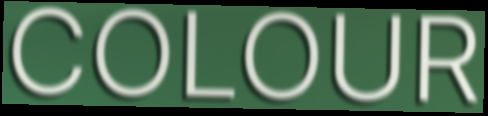
COLOUR